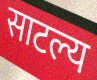
साटल्य